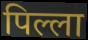
पिल्ला